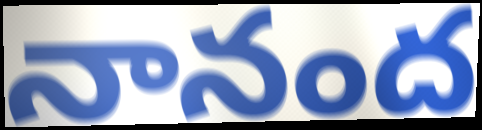
నానంద